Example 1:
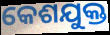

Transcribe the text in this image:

କେଶଯୁକ୍ତ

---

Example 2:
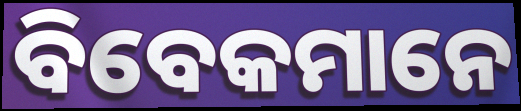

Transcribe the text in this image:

ବିବେକମାନେ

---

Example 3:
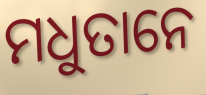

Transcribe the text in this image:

ମଧୁତାନେ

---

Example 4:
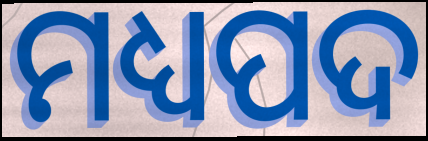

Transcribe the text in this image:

ମଧ୍ୟପଦ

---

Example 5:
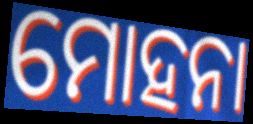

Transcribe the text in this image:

ମୋହନା